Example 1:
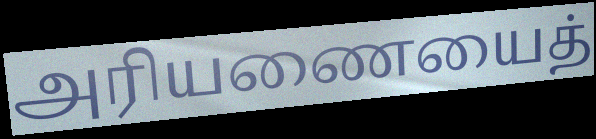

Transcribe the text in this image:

அரியணையைத்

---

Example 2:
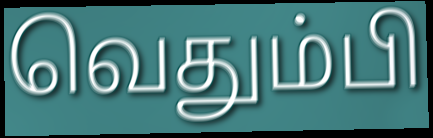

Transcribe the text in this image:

வெதும்பி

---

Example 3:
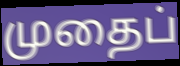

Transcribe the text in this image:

முதைப்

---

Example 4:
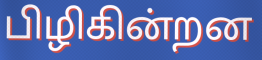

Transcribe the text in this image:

பிழிகின்றன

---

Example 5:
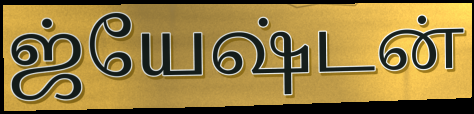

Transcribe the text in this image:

ஜ்யேஷ்டன்